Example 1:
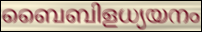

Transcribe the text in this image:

ബൈബിളധ്യയനം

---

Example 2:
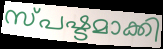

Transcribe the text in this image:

സ്പഷ്ടമാക്കി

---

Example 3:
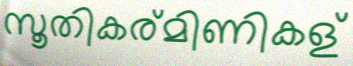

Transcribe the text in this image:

സൂതികര്മിണികള്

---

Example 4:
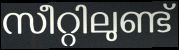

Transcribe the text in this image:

സീറ്റിലുണ്ട്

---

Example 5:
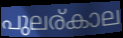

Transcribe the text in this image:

പുലര്കാല